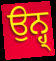
ਉਨ੍ਹ੍